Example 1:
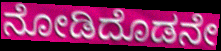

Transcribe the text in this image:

ನೋಡಿದೊಡನೇ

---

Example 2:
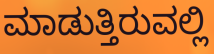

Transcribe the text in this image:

ಮಾಡುತ್ತಿರುವಲ್ಲಿ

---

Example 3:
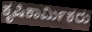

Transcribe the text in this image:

ಕೃಷಿಕಾರ್ಮಿಕರು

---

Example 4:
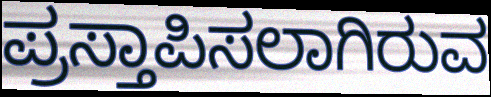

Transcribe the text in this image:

ಪ್ರಸ್ತಾಪಿಸಲಾಗಿರುವ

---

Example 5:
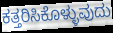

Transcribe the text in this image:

ಕತ್ತರಿಸಿಕೊಳ್ಳುವುದು